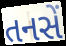
તનસેં